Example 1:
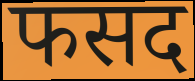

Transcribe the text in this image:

फसद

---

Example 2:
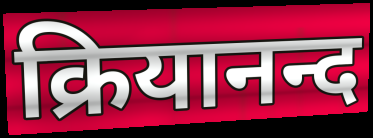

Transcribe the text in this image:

क्रियानन्द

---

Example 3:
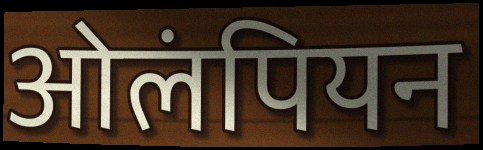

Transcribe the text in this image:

ओलंपियन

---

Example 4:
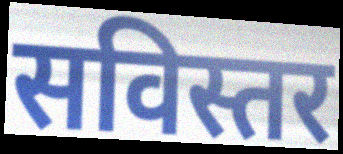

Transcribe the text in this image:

सविस्तर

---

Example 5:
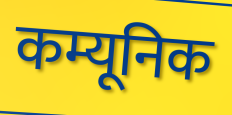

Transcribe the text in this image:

कम्यूनिक